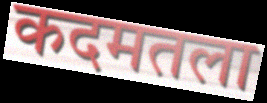
कदमतला